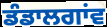
ਡੰਡਾਲਗਾਂਵ